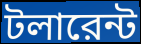
টলারেন্ট